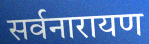
सर्वनारायण